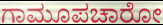
ಗಾಮೂಪಚಾರೋ